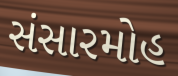
સંસારમોહ